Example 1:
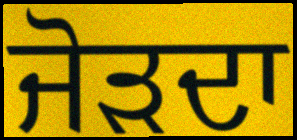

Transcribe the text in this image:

ਜੋੜਦਾ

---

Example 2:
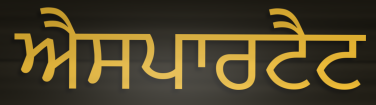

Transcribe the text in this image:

ਐਸਪਾਰਟੈਟ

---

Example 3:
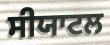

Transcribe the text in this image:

ਸੀਯਾਟਲ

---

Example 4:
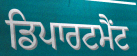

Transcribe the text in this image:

ਡਿਪਾਰਟਮੈਂਟ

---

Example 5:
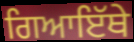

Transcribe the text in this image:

ਗਿਆਇੱਥੇ